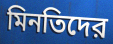
মিনতিদের